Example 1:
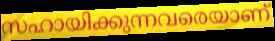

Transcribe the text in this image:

സഹായിക്കുന്നവരെയാണ്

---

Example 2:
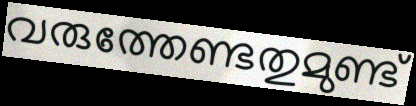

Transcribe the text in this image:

വരുത്തേണ്ടതുമുണ്ട്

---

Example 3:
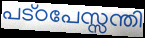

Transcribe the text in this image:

പട്ഠപേസ്സന്തി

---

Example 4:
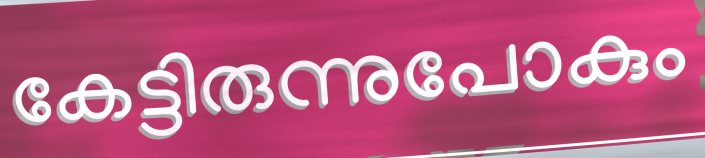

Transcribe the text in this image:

കേട്ടിരുന്നുപോകും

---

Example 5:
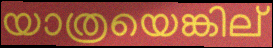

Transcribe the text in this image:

യാത്രയെങ്കില്